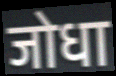
जोधा